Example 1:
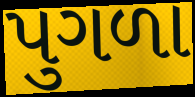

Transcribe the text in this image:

પુગળા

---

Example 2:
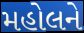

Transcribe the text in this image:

મહોલને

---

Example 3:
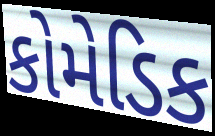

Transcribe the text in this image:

કોમેડિક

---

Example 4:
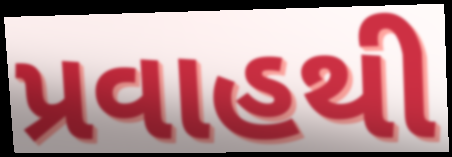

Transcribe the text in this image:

પ્રવાહથી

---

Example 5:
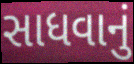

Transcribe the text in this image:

સાધવાનું